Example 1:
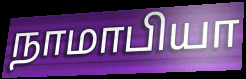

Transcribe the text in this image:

நாமாபியா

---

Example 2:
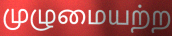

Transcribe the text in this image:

முழுமையற்ற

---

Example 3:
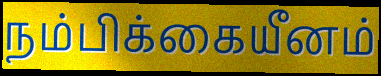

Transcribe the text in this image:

நம்பிக்கையீனம்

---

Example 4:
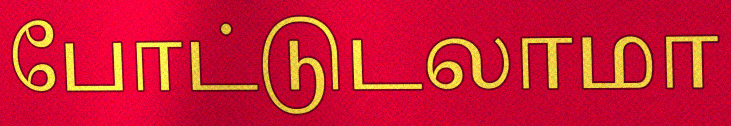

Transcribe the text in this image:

போட்டுடலாமா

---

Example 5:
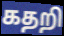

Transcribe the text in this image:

கதறி